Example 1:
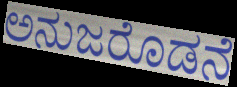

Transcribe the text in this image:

ಅನುಜರೊಡನೆ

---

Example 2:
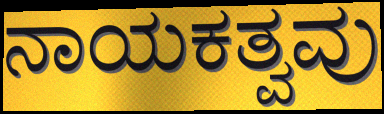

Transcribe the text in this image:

ನಾಯಕತ್ವವು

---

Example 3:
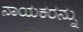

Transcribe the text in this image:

ನಾಯಕರನ್ನು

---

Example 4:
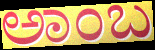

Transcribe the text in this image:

ಅಾಂಬ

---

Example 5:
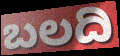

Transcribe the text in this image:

ಬಲದಿ